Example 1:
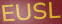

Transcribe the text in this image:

EUSL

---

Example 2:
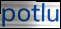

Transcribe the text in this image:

potlu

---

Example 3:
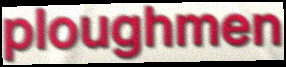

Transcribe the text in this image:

ploughmen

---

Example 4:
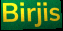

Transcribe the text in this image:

Birjis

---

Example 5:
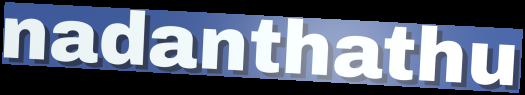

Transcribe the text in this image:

nadanthathu